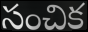
సంచిక